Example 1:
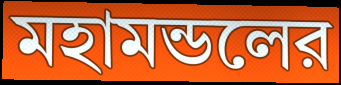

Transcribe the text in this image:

মহামন্ডলের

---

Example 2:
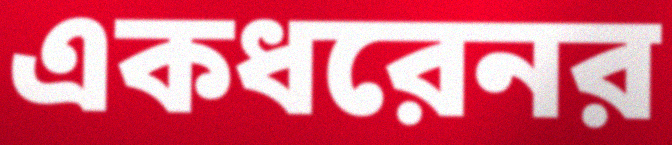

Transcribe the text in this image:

একধরেনর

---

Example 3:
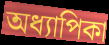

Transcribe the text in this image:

অধ্যাপিকা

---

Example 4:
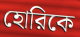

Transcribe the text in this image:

হোরিকে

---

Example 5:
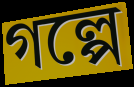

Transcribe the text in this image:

গল্পে